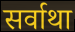
सर्वाथा